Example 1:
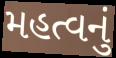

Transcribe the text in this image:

મહત્વનું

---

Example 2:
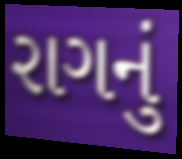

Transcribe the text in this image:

રાગનું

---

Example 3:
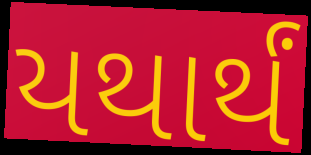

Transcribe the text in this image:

યથાર્થં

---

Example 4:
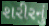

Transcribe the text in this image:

શરીરનું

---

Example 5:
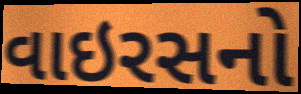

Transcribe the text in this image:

વાઇરસનો